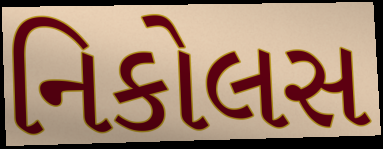
નિકોલસ